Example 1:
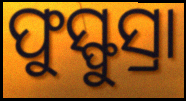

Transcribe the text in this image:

ଫୁସ୍ଫୁସ୍ରା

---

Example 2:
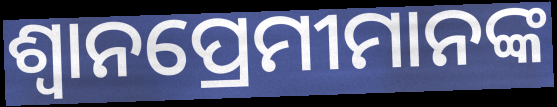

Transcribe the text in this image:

ଶ୍ଵାନପ୍ରେମୀମାନଙ୍କ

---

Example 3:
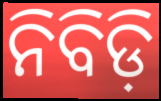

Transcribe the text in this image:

ନିବିଡ଼ି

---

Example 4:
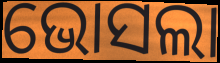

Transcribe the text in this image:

ଭୋସଲା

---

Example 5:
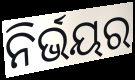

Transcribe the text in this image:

ନିର୍ଭୟର